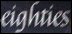
eighties